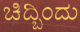
ಚಿದ್ಬಿಂದು